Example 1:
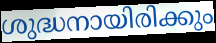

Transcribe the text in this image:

ശുദ്ധനായിരിക്കും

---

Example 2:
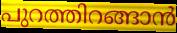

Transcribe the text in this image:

പുറത്തിറങ്ങാൻ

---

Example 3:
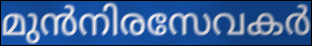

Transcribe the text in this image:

മുൻനിരസേവകർ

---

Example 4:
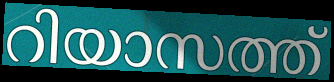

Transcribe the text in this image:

റിയാസത്ത്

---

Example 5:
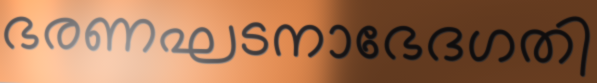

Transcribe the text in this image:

ഭരണഘടനാഭേദഗതി